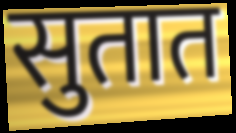
सुतात